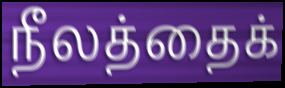
நீலத்தைக்